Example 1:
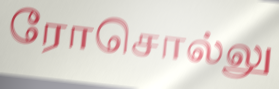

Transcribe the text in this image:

ரோசொல்லு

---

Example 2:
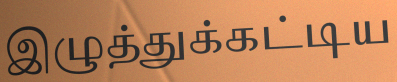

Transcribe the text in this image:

இழுத்துக்கட்டிய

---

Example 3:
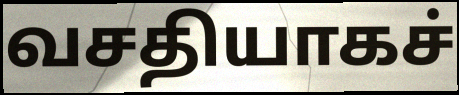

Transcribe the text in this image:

வசதியாகச்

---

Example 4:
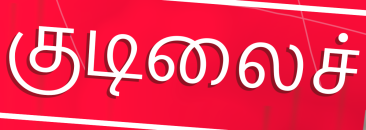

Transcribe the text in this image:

குடிலைச்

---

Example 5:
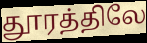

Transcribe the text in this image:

தூரத்திலே